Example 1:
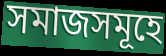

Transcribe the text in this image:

সমাজসমূহে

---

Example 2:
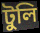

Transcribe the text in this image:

টুলি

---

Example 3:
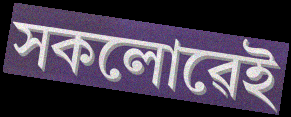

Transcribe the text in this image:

সকলোৱেই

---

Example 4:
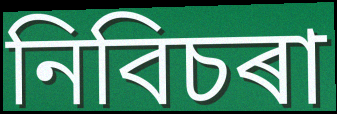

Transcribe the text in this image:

নিবিচৰা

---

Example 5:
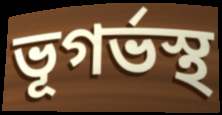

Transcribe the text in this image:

ভূগৰ্ভস্থ